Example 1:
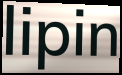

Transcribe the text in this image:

lipin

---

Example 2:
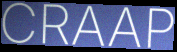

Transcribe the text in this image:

CRAAP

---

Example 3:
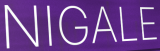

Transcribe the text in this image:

NIGALE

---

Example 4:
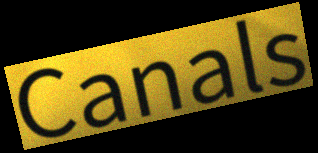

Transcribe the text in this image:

Canals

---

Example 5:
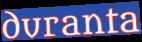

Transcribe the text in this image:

duranta